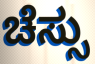
ಚೆಸ್ಸು